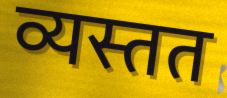
व्यस्तत